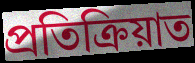
প্ৰতিক্ৰিয়াত